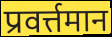
प्रवर्त्तमान